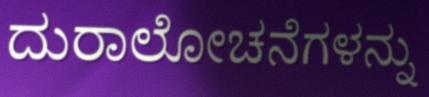
ದುರಾಲೋಚನೆಗಳನ್ನು